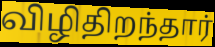
விழிதிறந்தார்